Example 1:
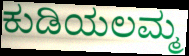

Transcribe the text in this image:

ಕುಡಿಯಲಮ್ಮ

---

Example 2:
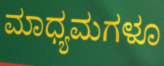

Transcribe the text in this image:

ಮಾಧ್ಯಮಗಳೂ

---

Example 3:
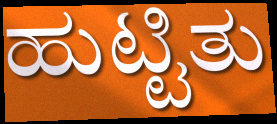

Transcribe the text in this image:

ಹುಟ್ಟಿತು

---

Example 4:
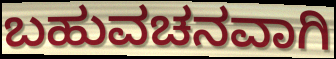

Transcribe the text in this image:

ಬಹುವಚನವಾಗಿ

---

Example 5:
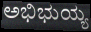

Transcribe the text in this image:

ಅಭಿಭುಯ್ಯ